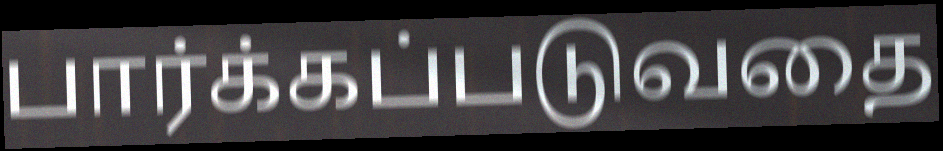
பார்க்கப்படுவதை